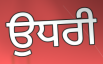
ਉਧਰੀ